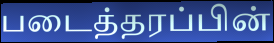
படைத்தரப்பின்